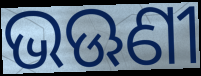
ଭଊଣୀ